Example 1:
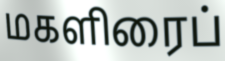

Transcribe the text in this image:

மகளிரைப்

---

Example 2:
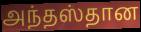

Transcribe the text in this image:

அந்தஸ்தான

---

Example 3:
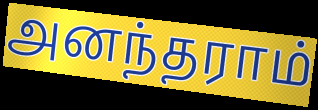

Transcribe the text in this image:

அனந்தராம்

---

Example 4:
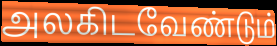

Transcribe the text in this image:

அலகிடவேண்டும்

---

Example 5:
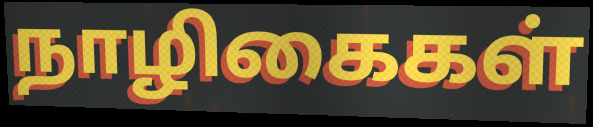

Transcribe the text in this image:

நாழிகைகள்